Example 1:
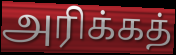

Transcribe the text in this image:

அரிக்கத்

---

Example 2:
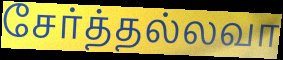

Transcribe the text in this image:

சேர்த்தல்லவா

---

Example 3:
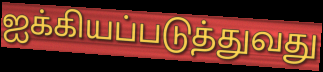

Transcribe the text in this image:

ஐக்கியப்படுத்துவது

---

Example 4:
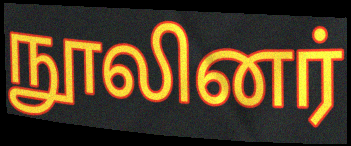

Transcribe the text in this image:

நூலினர்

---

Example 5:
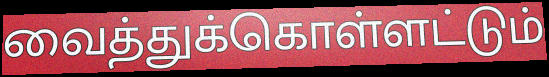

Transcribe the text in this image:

வைத்துக்கொள்ளட்டும்